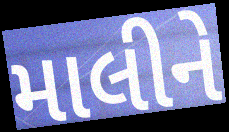
માલીને